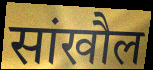
सांखौल